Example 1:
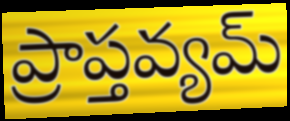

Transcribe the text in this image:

ప్రాప్తవ్యమ్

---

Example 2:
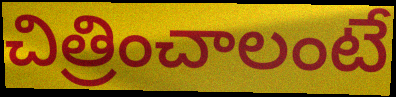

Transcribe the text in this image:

చిత్రించాలంటే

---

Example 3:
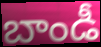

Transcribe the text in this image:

బాండీ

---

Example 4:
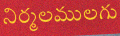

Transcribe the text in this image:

నిర్మలములగు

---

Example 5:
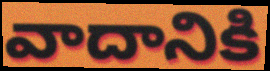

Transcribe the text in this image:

వాదానికి